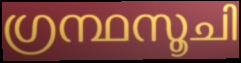
ഗ്രന്ഥസൂചി